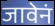
जावेनं